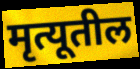
मृत्यूतील